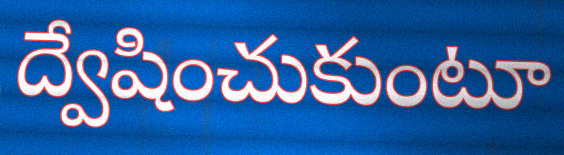
ద్వేషించుకుంటూ